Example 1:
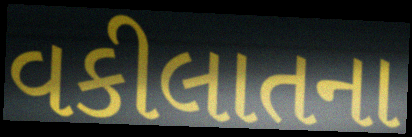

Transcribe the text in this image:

વકીલાતના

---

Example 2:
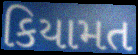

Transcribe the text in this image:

કિયામત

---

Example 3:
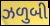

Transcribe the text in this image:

ઝળુબી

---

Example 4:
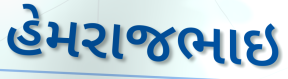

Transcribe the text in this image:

હેમરાજભાઇ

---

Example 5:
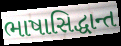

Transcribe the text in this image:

ભાષાસિદ્ધાન્ત